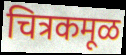
चित्रकमूळ